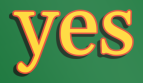
yes